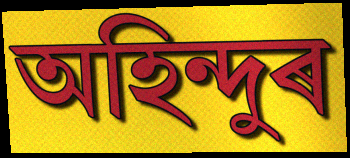
অহিন্দুৰ